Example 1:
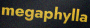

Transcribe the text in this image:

megaphylla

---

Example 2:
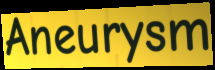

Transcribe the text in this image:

Aneurysm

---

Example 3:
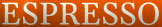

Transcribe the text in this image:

ESPRESSO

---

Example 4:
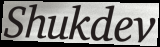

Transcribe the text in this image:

Shukdev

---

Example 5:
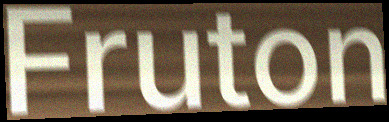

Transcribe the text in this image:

Fruton